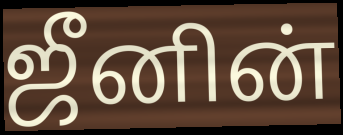
ஜீனின்